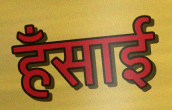
हँसाई